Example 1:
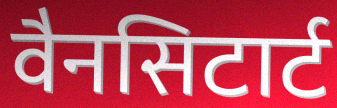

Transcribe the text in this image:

वैनसिटार्ट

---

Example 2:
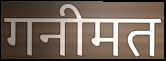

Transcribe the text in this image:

गनीमत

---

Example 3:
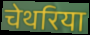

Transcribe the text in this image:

चेथरिया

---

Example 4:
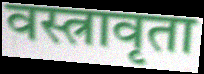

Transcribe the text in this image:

वस्त्रावृता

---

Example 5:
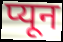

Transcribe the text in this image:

प्यून